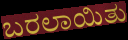
ಬರಲಾಯಿತು